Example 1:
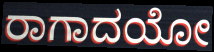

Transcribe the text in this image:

ರಾಗಾದಯೋ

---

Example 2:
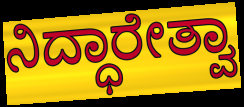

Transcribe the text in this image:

ನಿದ್ಧಾರೇತ್ವಾ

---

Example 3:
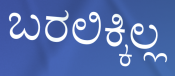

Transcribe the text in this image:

ಬರಲಿಕ್ಕಿಲ್ಲ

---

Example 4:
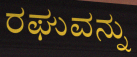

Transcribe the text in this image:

ರಘುವನ್ನು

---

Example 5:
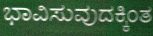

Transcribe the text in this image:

ಭಾವಿಸುವುದಕ್ಕಿಂತ